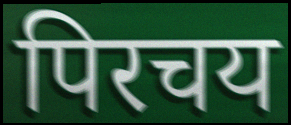
पिरचय